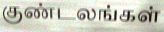
குண்டலங்கள்